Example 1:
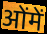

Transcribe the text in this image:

ओंमें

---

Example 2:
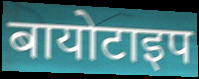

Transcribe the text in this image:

बायोटाइप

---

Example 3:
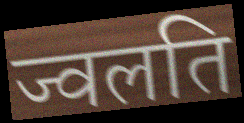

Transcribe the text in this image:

ज्वलति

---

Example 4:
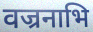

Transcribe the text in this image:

वज्रनाभि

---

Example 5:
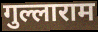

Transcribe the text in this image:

गुल्लाराम